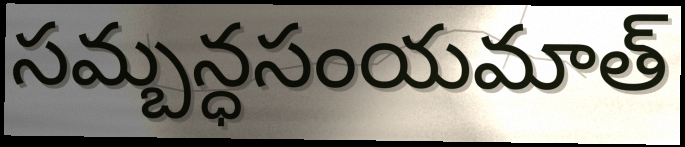
సమ్బన్ధసంయమాత్